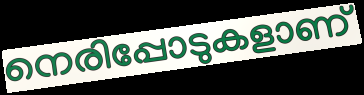
നെരിപ്പോടുകളാണ്